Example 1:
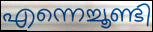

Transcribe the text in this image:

എന്നെച്ചൂണ്ടി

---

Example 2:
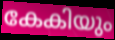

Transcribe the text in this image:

കേകിയും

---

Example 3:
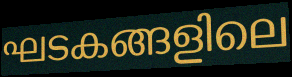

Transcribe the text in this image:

ഘടകങ്ങളിലെ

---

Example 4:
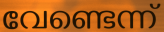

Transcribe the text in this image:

വേണ്ടെന്ന്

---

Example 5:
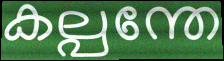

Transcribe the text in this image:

കല്പന്തേ